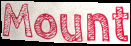
Mount